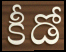
కీడో